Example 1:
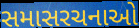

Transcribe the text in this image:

સમાસરચનાઓ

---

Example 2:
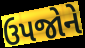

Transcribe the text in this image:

ઉપજોને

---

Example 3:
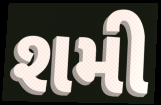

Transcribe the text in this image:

શમી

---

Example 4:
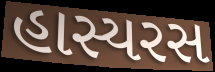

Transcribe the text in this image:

હાસ્યરસ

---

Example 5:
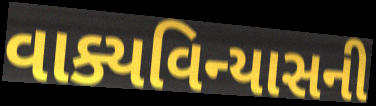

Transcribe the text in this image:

વાક્યવિન્યાસની